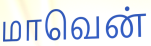
மாவென்